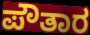
ಪೌತಾರ